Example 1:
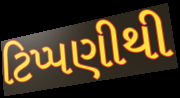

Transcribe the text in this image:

ટિપ્પણીથી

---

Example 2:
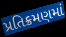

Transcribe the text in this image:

પ્રતિક્રમણમાં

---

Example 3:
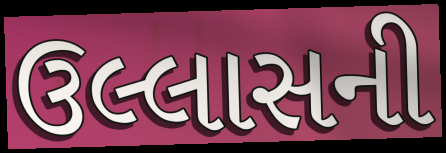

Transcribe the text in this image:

ઉલ્લાસની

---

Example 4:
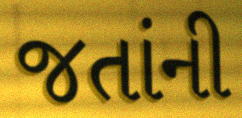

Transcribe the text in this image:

જતાંની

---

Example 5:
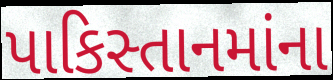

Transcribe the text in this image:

પાકિસ્તાનમાંના